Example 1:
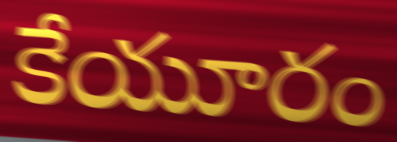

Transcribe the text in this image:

కేయూరం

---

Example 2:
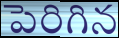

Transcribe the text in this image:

పెరిగిన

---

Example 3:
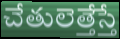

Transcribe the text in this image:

చేతులెత్తేస్తే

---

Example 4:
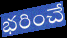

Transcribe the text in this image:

భరించే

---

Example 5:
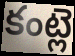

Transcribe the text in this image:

కంట్లె